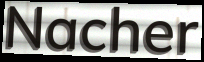
Nacher